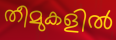
തീമുകളിൽ